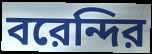
বরেন্দির